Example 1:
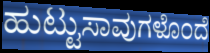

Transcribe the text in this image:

ಹುಟ್ಟುಸಾವುಗಳೊಂದೆ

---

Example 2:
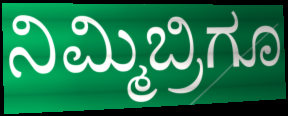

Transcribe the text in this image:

ನಿಮ್ಮಿಬ್ರಿಗೂ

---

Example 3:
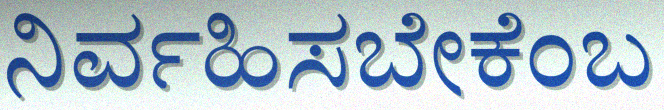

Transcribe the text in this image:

ನಿರ್ವಹಿಸಬೇಕೆಂಬ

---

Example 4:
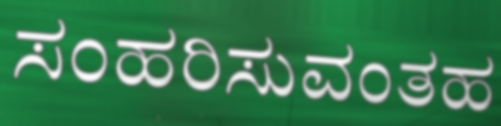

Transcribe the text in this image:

ಸಂಹರಿಸುವಂತಹ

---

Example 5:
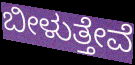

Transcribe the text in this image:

ಬೀಳುತ್ತೇವೆ